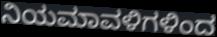
ನಿಯಮಾವಳಿಗಳಿಂದ